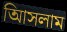
আিসলাম